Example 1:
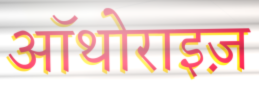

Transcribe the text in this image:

ऑथोराइज़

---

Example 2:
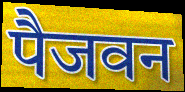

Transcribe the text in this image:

पैजवन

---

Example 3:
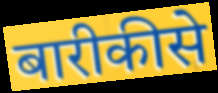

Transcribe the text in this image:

बारीकीसे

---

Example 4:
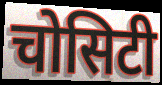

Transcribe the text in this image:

चोसिटी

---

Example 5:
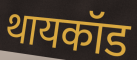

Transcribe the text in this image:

थायकॉड